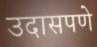
उदासपणे